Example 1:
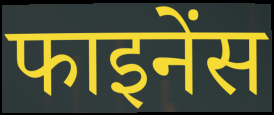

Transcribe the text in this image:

फाइनेंस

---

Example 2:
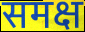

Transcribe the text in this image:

समक्ष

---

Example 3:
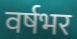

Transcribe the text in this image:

वर्षभर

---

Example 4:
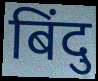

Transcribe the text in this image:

बिंदु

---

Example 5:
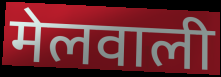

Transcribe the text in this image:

मेलवाली